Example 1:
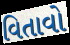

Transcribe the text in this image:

વિતાવો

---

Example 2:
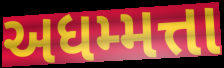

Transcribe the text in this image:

અધમ્મત્તા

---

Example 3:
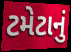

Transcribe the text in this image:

ટમેટાનું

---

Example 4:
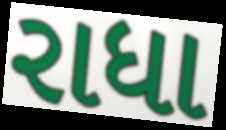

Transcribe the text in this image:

રાધા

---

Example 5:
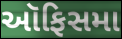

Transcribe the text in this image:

ઑફિસમા